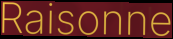
Raisonne